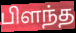
பிளந்த